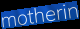
motherin